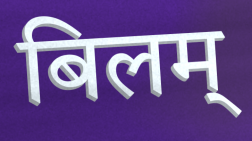
बिलम्